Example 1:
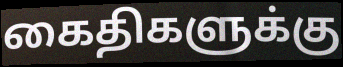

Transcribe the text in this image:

கைதிகளுக்கு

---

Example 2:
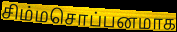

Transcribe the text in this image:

சிம்மசொப்பனமாக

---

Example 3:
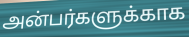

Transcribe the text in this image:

அன்பர்களுக்காக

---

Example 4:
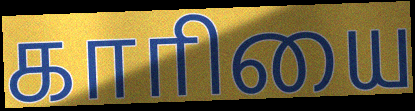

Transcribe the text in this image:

காரியை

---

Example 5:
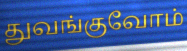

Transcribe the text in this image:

துவங்குவோம்